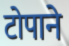
टोपाने